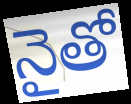
నైతో